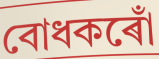
বোধকৰোঁ